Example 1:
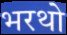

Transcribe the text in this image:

भरथो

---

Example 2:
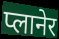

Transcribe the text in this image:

प्लानेर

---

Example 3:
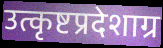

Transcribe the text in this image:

उत्कृष्टप्रदेशाग्र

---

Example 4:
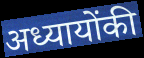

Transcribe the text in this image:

अध्यायोंकी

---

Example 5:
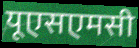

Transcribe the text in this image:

यूएसएमसी